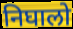
निघालो